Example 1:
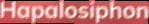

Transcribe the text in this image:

Hapalosiphon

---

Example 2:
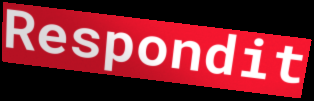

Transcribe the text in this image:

Respondit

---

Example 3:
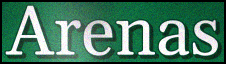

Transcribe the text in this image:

Arenas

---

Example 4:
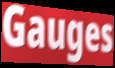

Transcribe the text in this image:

Gauges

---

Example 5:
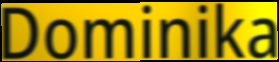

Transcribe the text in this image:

Dominika